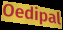
Oedipal